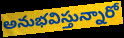
అనుభవిస్తున్నారో